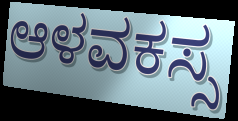
ಆಳವಕಸ್ಸ